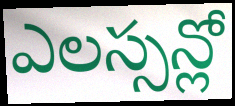
ఎలస్సన్లో